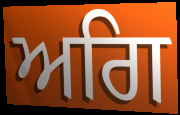
ਅਗਿ